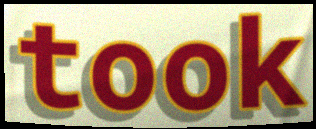
took